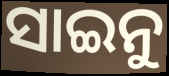
ସାଇନୁ